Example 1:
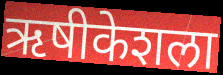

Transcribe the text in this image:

ऋषीकेशला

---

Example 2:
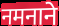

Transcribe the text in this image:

नमनाने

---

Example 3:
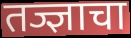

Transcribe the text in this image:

तज्ज्ञाचा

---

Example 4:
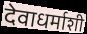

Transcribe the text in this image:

देवाधर्माशी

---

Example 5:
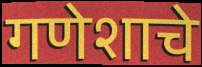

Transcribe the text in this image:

गणेशाचे